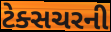
ટેક્સચરની